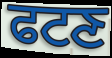
ਫਟਣ